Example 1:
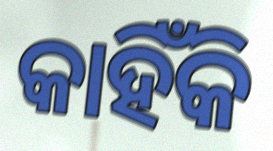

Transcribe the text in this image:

କାହିଁକି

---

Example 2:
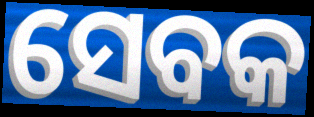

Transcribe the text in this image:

ସେବକ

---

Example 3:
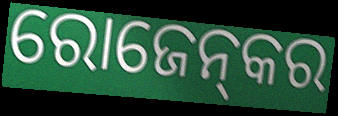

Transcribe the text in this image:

ରୋଜେନ୍‌କର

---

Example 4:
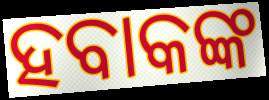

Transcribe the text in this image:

ହବାକଙ୍କ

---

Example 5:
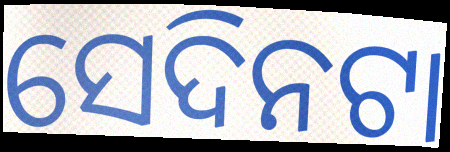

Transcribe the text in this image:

ସେଦିନଟା